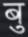
बु